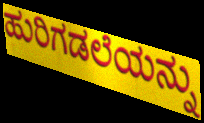
ಹುರಿಗಡಲೆಯನ್ನು